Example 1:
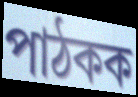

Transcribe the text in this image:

পাঠকক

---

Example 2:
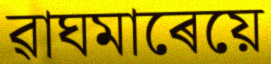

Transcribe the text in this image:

ৱাঘমাৰেয়ে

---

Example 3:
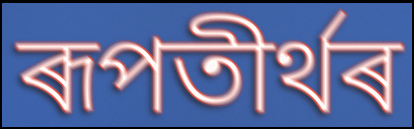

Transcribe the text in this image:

ৰূপতীৰ্থৰ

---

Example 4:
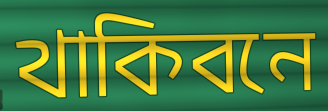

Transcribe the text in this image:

থাকিবনে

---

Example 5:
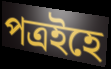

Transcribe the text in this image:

পত্ৰইহে